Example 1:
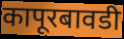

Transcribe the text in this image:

कापूरबावडी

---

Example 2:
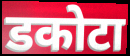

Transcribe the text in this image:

डकोटा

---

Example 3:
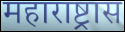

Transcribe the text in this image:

महाराष्ट्रास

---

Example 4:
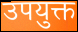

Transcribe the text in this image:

उपयुक्त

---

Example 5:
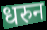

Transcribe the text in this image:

धरुन